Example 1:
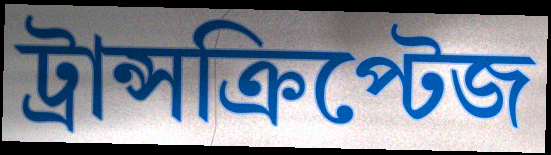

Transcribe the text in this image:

ট্রান্সক্রিপ্টেজ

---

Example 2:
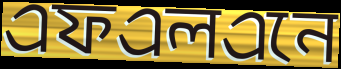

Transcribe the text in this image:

এফএলএনে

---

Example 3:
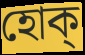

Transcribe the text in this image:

হোক্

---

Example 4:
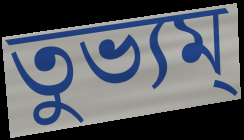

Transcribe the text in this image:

তুভ্যম্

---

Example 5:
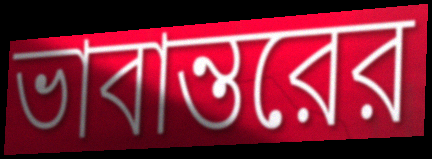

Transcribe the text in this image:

ভাবান্তরের